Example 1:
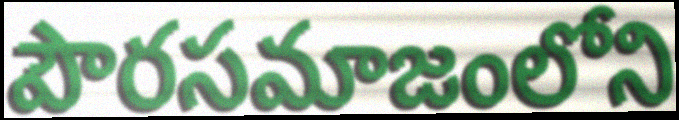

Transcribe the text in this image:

పౌరసమాజంలోని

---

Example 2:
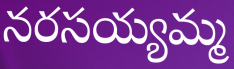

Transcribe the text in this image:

నరసయ్యమ్మ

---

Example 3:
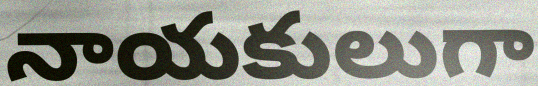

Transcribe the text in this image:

నాయకులుగా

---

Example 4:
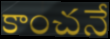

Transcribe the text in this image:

కాంచనే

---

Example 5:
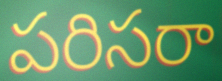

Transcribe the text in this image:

పరిసరా